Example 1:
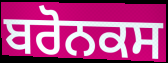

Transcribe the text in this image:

ਬਰੋਨਕਸ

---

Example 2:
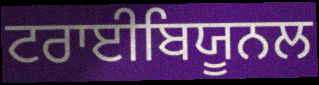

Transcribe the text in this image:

ਟਰਾਈਬਿਯੂਨਲ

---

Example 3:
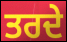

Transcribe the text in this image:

ਤਰਦੇ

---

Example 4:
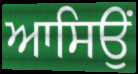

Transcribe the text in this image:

ਆਸਿਉਂ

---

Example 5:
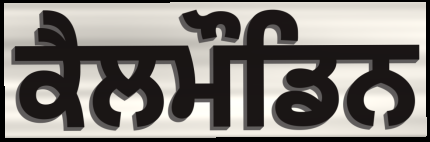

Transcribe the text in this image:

ਕੈਲਮੌਡਿਨ